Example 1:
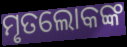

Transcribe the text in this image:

ମୃତଲୋକଙ୍କ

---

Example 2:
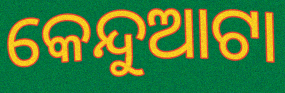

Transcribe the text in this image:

କେନ୍ଦୁଆଟା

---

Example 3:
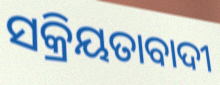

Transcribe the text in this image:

ସକ୍ରିୟତାବାଦୀ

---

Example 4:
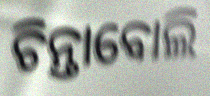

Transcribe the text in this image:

ଚିନ୍ତାବୋଲି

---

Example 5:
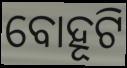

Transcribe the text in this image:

ବୋହୂଟି